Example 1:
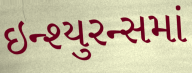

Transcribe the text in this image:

ઇન્શ્યુરન્સમાં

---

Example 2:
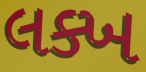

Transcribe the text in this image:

લક્ખ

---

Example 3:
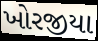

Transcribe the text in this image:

ખોરજીયા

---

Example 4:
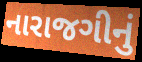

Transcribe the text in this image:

નારાજગીનું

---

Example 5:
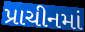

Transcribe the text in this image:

પ્રાચીનમાં